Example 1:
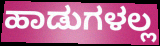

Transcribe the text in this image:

ಹಾಡುಗಳಲ್ಲ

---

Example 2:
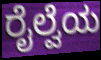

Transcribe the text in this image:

ರೈಲ್ವೆಯ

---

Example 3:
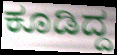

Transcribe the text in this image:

ಕೂಡಿದ್ದ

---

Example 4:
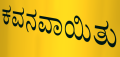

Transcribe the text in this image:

ಕವನವಾಯಿತು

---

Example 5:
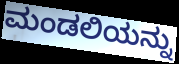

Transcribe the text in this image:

ಮಂಡಲಿಯನ್ನು